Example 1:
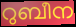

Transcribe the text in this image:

റുബീന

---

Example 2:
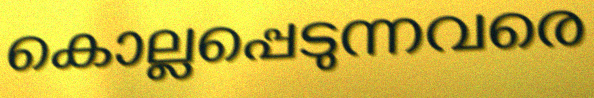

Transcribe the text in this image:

കൊല്ലപ്പെടുന്നവരെ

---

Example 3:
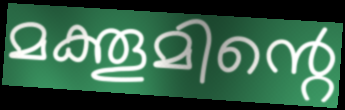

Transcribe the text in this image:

മക്തൂമിന്റെ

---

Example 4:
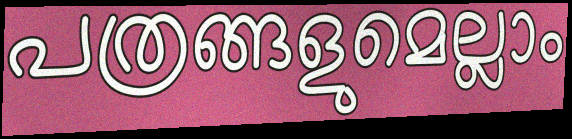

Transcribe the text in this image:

പത്രങ്ങളുമെല്ലാം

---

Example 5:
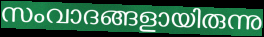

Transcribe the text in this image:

സംവാദങ്ങളായിരുന്നു